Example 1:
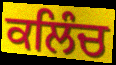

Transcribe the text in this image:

ਕਲਿੰਚ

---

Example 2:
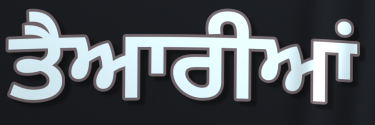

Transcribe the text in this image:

ਤੈਆਰੀਆਂ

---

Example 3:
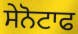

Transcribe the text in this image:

ਸੇਨੋਟਾਫ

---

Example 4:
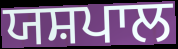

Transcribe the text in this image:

ਯਸ਼ਪਾਲ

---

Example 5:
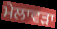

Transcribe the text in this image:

ਮੇਲਾਵੜਾ